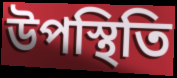
উপস্থিতি